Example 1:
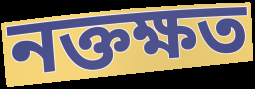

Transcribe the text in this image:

নক্তক্ষত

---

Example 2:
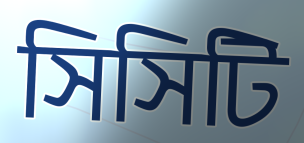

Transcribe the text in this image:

সিসিটি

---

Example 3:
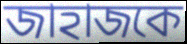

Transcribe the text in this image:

জাহাজকে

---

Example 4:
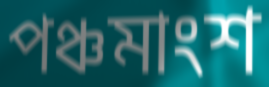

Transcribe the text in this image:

পঞ্চমাংশ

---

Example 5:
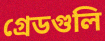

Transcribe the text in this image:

গ্রেডগুলি